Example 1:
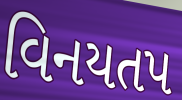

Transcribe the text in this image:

વિનયતપ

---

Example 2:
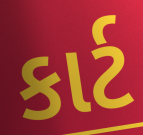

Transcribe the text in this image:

કાર્ટ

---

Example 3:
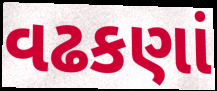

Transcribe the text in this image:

વઢકણાં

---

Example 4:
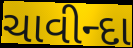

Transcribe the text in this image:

ચાવીન્દા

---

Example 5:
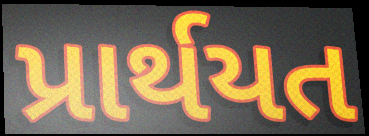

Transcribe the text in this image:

પ્રાર્થયત